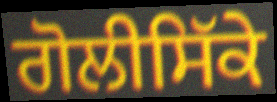
ਗੋਲੀਸਿੱਕੇ